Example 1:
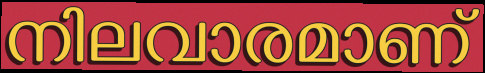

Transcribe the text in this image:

നിലവാരമാണ്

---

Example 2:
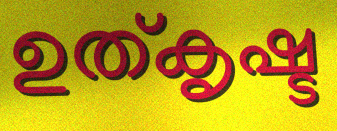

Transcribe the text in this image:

ഉത്കൃഷ്ട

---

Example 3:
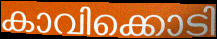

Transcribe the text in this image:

കാവിക്കൊടി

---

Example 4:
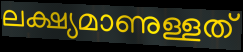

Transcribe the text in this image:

ലക്ഷ്യമാണുള്ളത്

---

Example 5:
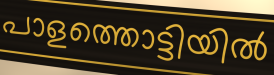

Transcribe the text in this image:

പാളത്തൊട്ടിയിൽ